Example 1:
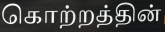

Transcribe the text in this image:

கொற்றத்தின்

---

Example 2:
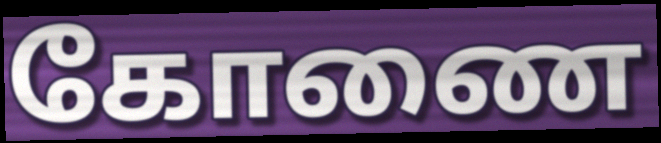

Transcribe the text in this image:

கோணை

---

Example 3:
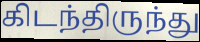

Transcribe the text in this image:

கிடந்திருந்து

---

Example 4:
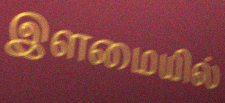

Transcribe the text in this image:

இளமையில்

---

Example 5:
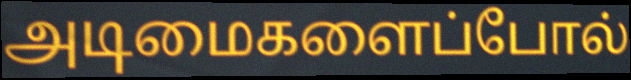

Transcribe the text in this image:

அடிமைகளைப்போல்